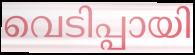
വെടിപ്പായി